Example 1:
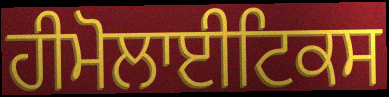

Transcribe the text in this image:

ਹੀਮੋਲਾਈਟਿਕਸ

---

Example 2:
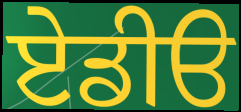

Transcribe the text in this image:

ਏਡੀੳ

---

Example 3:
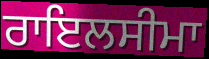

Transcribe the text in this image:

ਰਾਇਲਸੀਮਾ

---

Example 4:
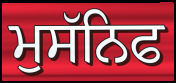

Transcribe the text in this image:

ਮੁਸੱਨਿਫ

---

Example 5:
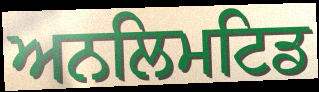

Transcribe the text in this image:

ਅਨਲਿਮਟਿਡ